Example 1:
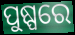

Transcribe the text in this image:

ପୁଷ୍ପରେ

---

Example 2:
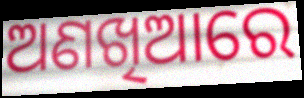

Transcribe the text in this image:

ଅଣଖିଆରେ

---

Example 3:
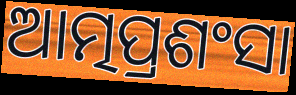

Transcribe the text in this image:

ଆତ୍ମପ୍ରଶଂସା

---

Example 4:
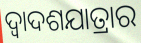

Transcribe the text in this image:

ଦ୍ୱାଦଶଯାତ୍ରାର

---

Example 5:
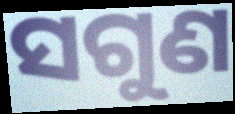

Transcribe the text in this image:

ସଗୁଣ